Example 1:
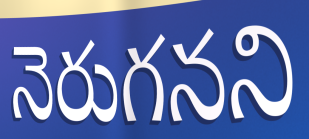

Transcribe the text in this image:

నెరుగనని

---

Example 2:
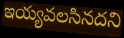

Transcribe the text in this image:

ఇయ్యవలసినదని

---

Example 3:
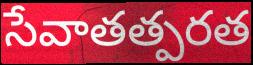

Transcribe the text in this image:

సేవాతత్పరత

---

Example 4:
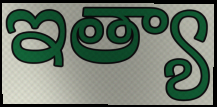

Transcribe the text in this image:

ఇత్యా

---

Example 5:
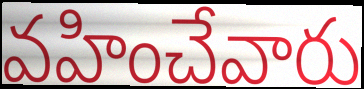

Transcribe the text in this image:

వహించేవారు